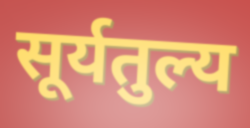
सूर्यतुल्य